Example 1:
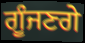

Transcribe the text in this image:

ਗੂੰਜਣਗੇ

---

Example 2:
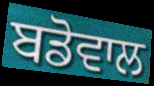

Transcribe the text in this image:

ਬਡੋਵਾਲ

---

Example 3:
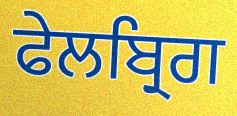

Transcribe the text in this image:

ਫੇਲਬ੍ਰਿਗ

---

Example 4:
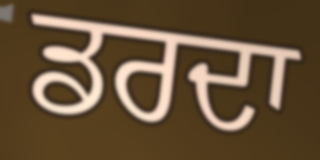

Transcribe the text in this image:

ਡਰਦਾ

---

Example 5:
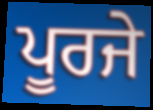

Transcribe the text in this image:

ਪੂਰਜੇ